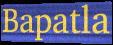
Bapatla